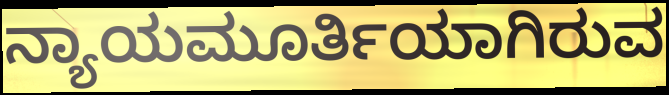
ನ್ಯಾಯಮೂರ್ತಿಯಾಗಿರುವ